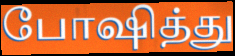
போஷித்து